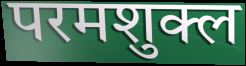
परमशुक्ल